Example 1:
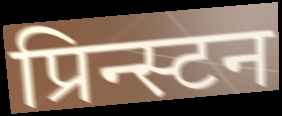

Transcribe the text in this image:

प्रिन्स्टन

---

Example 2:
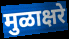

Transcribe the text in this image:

मुळाक्षरे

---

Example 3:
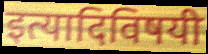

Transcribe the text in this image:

इत्यादिविषयी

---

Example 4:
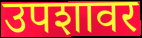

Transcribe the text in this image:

उपशावर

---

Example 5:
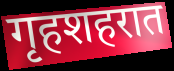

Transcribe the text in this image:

गृहशहरात